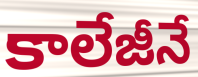
కాలేజీనే